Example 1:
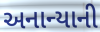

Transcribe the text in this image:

અનાન્યાની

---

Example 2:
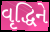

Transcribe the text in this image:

વૃદ્ધિને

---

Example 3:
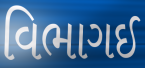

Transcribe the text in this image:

વિભાગઈ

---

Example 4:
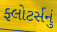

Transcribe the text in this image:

ફ્લોટર્સનું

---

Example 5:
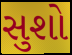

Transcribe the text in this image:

સુશો